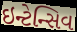
ઇન્ટેન્સિવ